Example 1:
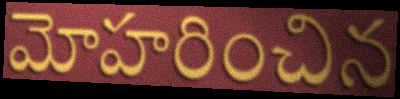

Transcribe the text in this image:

మోహరించిన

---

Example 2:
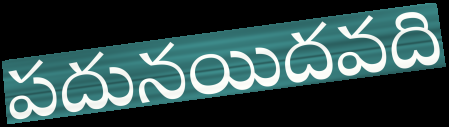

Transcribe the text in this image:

పదునయిదవది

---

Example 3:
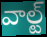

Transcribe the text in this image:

వాల్ట్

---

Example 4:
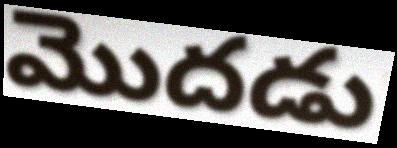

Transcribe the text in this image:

మొదడు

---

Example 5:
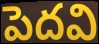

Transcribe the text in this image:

పెదవి